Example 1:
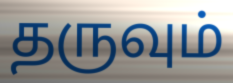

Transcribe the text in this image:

தருவும்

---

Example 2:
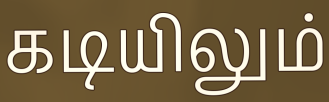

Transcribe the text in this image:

கடியிலும்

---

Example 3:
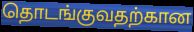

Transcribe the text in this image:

தொடங்குவதற்கான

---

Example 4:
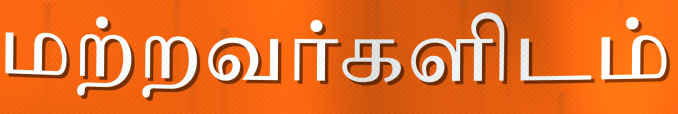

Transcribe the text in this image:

மற்றவர்களிடம்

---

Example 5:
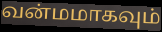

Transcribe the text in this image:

வன்மமாகவும்